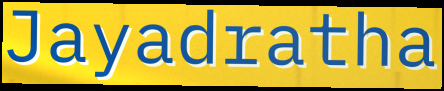
Jayadratha